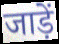
जाड़ें